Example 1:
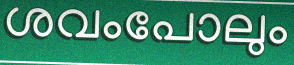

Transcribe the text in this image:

ശവംപോലും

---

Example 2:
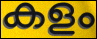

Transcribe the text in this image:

കളം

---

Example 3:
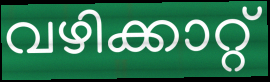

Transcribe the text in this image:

വഴിക്കാറ്റ്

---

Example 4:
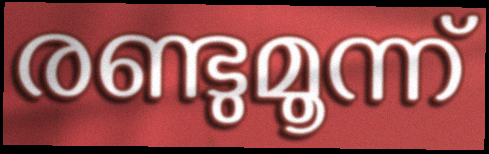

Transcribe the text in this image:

രണ്ടുമൂന്ന്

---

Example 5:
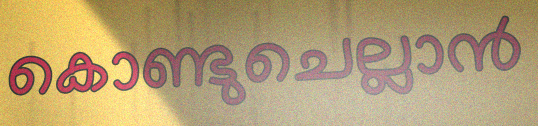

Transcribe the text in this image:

കൊണ്ടുചെല്ലാൻ